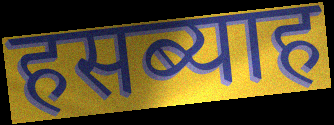
हसब्याह